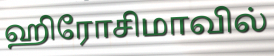
ஹிரோசிமாவில்